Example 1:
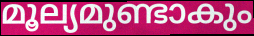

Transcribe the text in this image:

മൂല്യമുണ്ടാകും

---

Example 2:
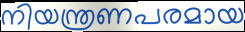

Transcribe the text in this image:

നിയന്ത്രണപരമായ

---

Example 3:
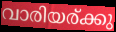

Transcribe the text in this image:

വാരിയര്ക്കു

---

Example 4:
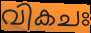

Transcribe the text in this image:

വികചഃ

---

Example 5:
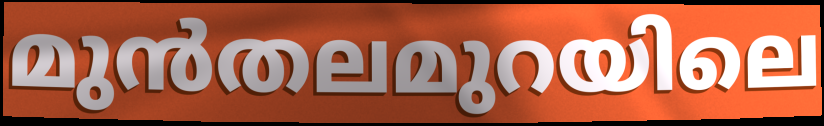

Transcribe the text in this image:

മുൻതലമുറയിലെ